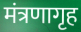
मंत्रणागृह